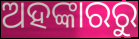
ଅହଙ୍କାରରୁ